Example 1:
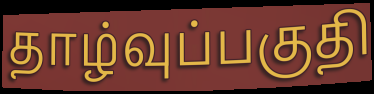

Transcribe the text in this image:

தாழ்வுப்பகுதி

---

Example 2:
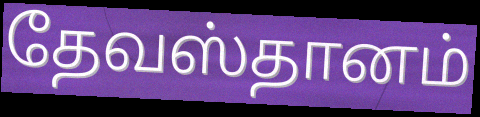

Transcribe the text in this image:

தேவஸ்தானம்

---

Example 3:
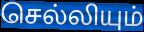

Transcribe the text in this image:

செல்லியும்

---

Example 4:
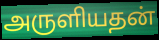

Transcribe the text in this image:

அருளியதன்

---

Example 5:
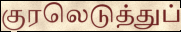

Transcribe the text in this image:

குரலெடுத்துப்